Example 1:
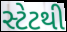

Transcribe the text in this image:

સ્ટેટથી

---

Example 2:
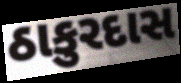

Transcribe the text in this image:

ઠાકુરદાસ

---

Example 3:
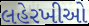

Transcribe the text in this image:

લહેરખીઓ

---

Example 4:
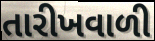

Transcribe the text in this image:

તારીખવાળી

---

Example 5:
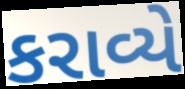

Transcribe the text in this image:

કરાવ્યે